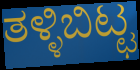
ತಳ್ಳಿಬಿಟ್ಟ